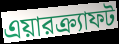
এয়ারক্র্যাফট